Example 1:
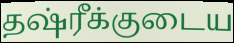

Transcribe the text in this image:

தஷ்ரீக்குடைய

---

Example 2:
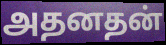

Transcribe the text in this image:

அதனதன்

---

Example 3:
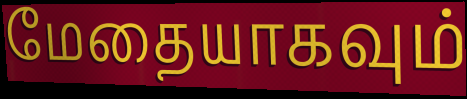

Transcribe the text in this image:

மேதையாகவும்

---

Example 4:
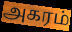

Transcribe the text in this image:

அகரம்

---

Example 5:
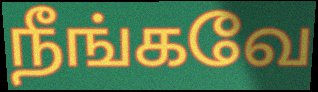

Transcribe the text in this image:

நீங்கவே